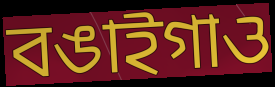
বঙাইগাও